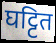
घट्टित